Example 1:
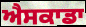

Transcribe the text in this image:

ਐਸਕਾਡਾ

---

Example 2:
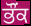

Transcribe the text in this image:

ਭੌਂਕ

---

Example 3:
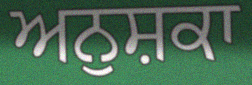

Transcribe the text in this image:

ਅਨੁਸ਼ਕਾ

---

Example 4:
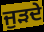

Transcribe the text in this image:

ਜੁੜਦੇ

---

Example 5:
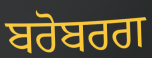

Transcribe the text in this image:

ਬਰੋਬਰਗ